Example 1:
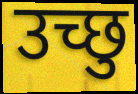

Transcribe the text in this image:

उच्छु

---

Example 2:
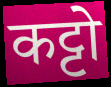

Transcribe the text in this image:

कट्टो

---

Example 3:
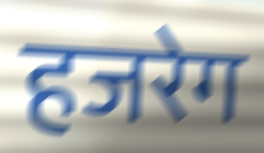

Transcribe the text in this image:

हजरेग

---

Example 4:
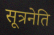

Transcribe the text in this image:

सूत्रनेति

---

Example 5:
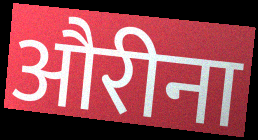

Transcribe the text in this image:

औरीना